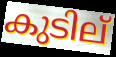
കുടില്